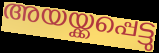
അയയ്ക്കപ്പെട്ടു